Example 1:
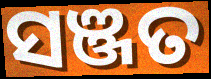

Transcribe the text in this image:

ସଞ୍ଜତ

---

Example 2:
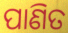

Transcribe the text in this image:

ପାଣିତ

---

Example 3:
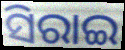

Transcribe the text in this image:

ସିରାଇ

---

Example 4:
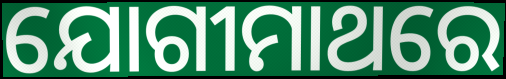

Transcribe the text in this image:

ଯୋଗୀମାଥରେ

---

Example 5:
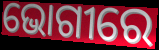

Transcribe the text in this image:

ଭୋଗୀରେ